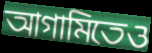
আগামিতেও